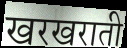
खरखराती